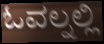
ಓವಲ್ನಲ್ಲಿ